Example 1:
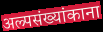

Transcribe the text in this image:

अल्पसंख्यांकाना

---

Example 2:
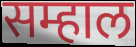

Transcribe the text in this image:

सम्हाल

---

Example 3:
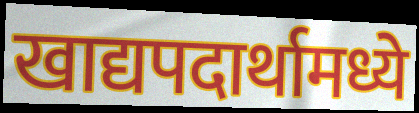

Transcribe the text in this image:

खाद्यपदार्थामध्ये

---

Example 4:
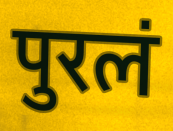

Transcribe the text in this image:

पुरलं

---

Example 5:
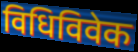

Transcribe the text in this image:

विधिविवेक